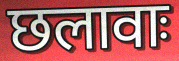
छलावाः